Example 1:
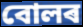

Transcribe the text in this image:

বোলৰ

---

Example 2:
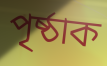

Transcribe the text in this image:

পৃষ্ঠাক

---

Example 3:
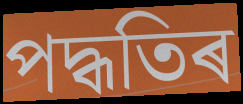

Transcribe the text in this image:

পদ্ধতিৰ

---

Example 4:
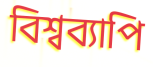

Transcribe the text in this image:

বিশ্বব্যাপি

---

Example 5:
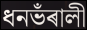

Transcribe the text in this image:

ধনভঁৰালী